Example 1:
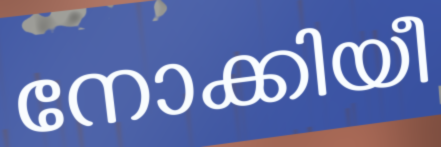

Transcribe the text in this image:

നോക്കിയീ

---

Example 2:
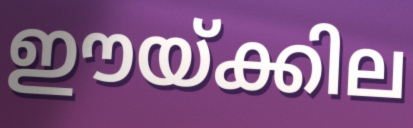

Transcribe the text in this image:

ഈയ്ക്കില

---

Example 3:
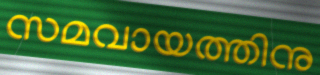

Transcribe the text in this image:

സമവായത്തിനു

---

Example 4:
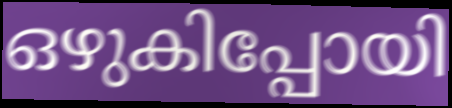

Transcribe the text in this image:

ഒഴുകിപ്പോയി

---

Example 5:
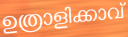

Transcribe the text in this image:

ഉത്രാളിക്കാവ്